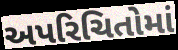
અપરિચિતોમાં